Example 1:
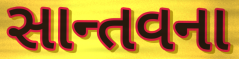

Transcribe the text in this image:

સાન્તવના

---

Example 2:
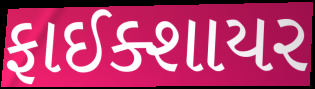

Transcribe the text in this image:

ફાઈક્શાયર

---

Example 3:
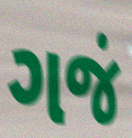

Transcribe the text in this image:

ગજં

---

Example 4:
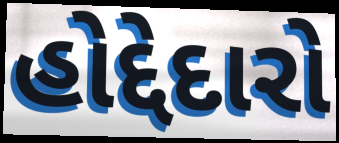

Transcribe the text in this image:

હોદ્દેદારો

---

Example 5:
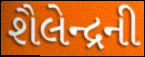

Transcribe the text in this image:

શૈલેન્દ્રની